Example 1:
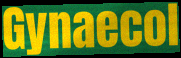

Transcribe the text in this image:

Gynaecol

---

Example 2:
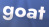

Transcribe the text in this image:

goat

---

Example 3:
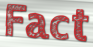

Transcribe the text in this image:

Fact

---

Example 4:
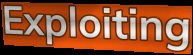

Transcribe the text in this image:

Exploiting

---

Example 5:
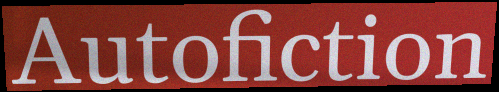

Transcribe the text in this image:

Autofiction